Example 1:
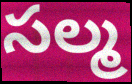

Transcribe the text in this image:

సల్మ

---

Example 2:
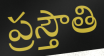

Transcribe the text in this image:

ప్రస్తౌతి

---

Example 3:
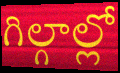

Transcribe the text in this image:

గిల్గాల్లో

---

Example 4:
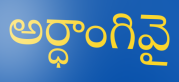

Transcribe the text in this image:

అర్ధాంగివై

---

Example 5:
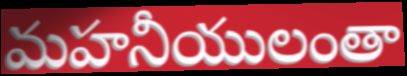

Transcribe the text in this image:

మహనీయులంతా